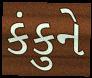
કંકુને